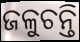
ଜଳୁଚନ୍ତି